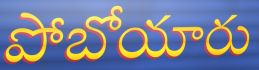
పోబోయారు